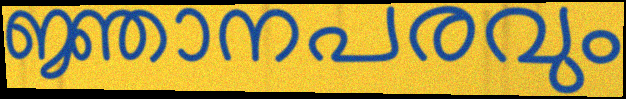
ജ്ഞാനപരവും